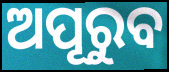
ଅପୂରୁବ